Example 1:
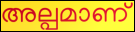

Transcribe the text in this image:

അല്പമാണ്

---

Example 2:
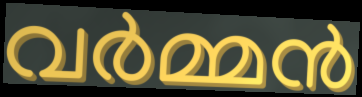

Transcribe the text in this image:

വർമ്മൻ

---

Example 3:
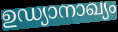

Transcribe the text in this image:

ഉഡ്യാനാഖ്യം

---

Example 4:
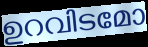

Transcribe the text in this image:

ഉറവിടമോ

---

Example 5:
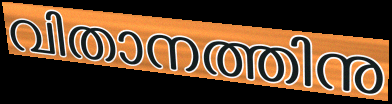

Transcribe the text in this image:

വിതാനത്തിനു